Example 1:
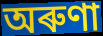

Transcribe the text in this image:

অৰুণা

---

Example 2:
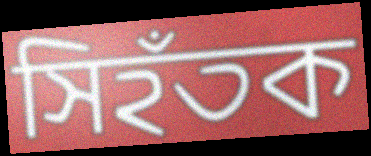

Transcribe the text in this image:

সিহঁতক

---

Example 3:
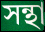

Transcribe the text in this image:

সন্থা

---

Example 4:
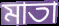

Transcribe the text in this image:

মাতা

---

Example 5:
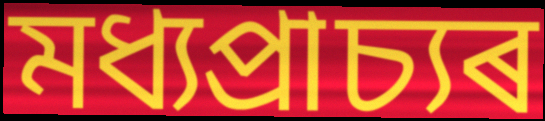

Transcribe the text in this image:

মধ্যপ্ৰাচ্যৰ